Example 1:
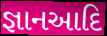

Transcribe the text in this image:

જ્ઞાનઆદિ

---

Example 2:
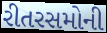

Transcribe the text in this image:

રીતરસમોની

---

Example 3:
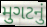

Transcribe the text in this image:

મુગટનું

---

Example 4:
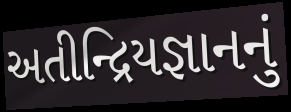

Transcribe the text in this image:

અતીન્દ્રિયજ્ઞાનનું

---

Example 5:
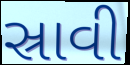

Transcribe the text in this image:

સ્રાવી